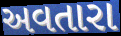
અવતારા